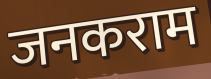
जनकराम